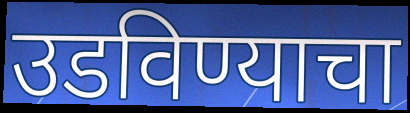
उडविण्याचा